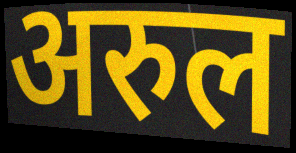
अरुल